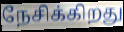
நேசிக்கிறது